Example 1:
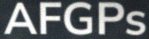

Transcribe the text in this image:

AFGPs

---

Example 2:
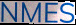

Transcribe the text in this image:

NMES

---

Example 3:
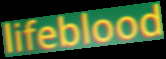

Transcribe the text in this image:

lifeblood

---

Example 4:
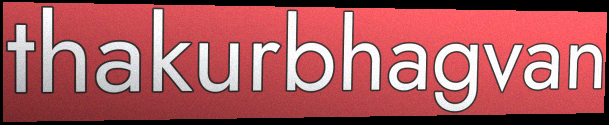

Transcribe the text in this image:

thakurbhagvan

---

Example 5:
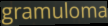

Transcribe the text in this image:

gramuloma